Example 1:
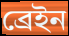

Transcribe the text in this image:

ব্রেইন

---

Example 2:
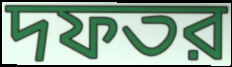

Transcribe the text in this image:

দফতর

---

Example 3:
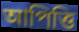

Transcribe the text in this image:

আপিত্তি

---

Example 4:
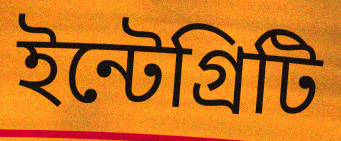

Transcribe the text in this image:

ইন্টেগ্রিটি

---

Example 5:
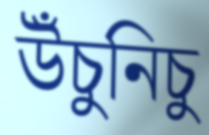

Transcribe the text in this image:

উঁচুনিচু